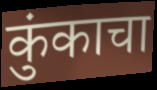
कुंकाचा